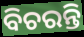
ବିଚରନ୍ତି